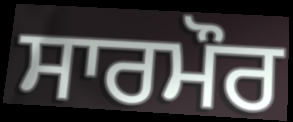
ਸਾਰਮੌਰ